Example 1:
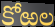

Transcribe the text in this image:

కోఱల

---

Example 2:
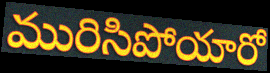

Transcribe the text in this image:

మురిసిపోయారో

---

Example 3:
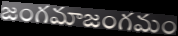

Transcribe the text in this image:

జంగమాజంగమం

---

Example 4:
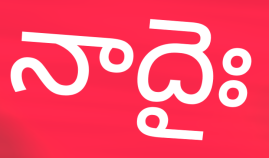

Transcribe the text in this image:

నాదైః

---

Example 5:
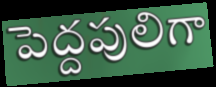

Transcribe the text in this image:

పెద్దపులిగా